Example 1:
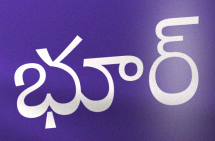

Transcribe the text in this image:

భూర్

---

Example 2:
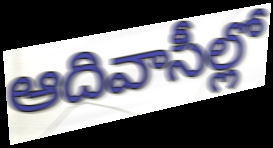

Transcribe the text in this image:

ఆదివాసీల్లో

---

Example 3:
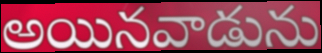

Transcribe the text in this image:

అయినవాడును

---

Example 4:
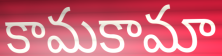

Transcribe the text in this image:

కామకామా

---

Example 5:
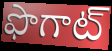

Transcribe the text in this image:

ఫొగాట్